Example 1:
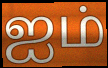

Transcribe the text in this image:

ஐம்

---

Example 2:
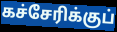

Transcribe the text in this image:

கச்சேரிக்குப்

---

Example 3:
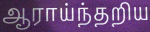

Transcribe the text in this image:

ஆராய்ந்தறிய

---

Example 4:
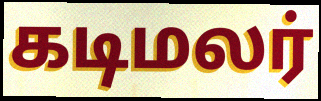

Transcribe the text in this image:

கடிமலர்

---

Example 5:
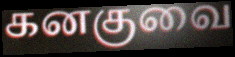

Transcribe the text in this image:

கனகுவை